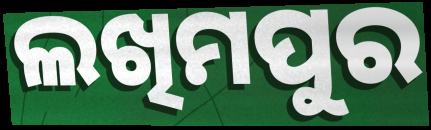
ଲଖିମପୁର